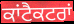
ਕਾਂਟੈਕਟਰਾਂ